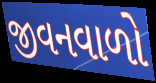
જીવનવાળો